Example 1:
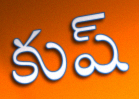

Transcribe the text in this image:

కుష్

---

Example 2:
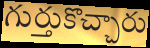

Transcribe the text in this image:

గుర్తుకొచ్చారు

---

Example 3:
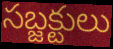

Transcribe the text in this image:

సబ్జక్టులు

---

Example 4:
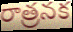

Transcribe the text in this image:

రాత్రనక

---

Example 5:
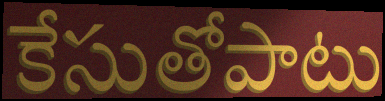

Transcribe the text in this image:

కేసుతోపాటు